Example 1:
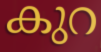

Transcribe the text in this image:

കുറ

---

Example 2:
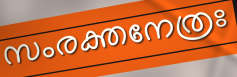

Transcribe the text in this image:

സംരക്തനേത്രഃ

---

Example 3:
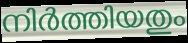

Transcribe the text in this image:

നിർത്തിയതും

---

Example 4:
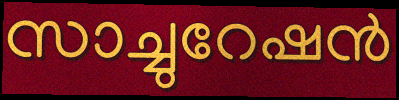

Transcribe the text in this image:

സാച്ചുറേഷൻ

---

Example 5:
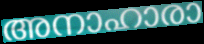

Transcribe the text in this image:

അനാഹാരാ